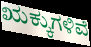
ಋಕ್ಕುಗಳಿವೆ